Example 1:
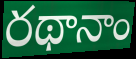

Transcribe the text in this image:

రథానాం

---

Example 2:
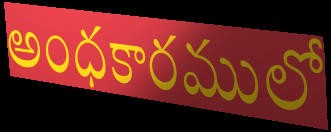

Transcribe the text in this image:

అంధకారములో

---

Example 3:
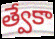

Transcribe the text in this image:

త్వేకా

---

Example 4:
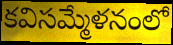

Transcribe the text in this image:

కవిసమ్మేళనంలో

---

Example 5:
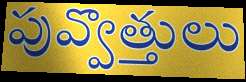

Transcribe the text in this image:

పువ్వొత్తులు